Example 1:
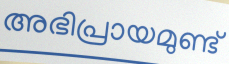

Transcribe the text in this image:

അഭിപ്രായമുണ്ട്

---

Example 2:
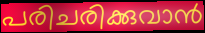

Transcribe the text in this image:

പരിചരിക്കുവാൻ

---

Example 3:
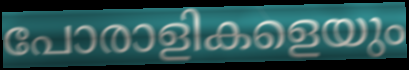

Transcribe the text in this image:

പോരാളികളെയും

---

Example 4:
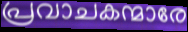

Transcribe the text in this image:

പ്രവാചകന്മാരേ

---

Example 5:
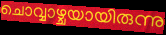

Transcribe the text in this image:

ചൊവ്വാഴ്ചയായിരുന്നു